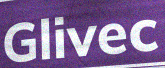
Glivec